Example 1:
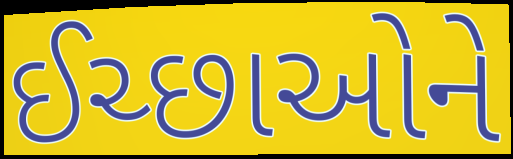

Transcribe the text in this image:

ઈચ્છાઓને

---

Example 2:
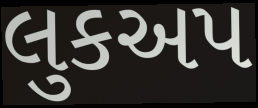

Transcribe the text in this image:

લુકઅપ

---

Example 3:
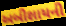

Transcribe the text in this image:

અબીશાયની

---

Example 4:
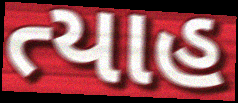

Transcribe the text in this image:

ત્યાહ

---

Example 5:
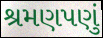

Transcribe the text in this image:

શ્રમણપણું